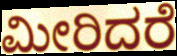
ಮೀರಿದರೆ